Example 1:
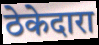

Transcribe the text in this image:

ठेकेदारा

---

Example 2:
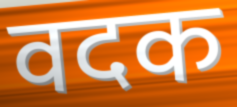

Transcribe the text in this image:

वदक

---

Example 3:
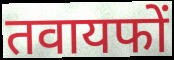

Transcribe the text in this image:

तवायफों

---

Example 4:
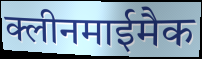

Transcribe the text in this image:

क्लीनमाईमैक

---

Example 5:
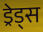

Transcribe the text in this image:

ड्रेड्स